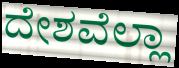
ದೇಶವೆಲ್ಲಾ